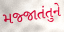
મજ્જાતંતુને